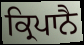
ਕ੍ਰਿਪਾਨੈ